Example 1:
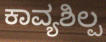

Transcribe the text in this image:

ಕಾವ್ಯಶಿಲ್ಪ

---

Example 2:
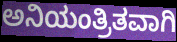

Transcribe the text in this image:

ಅನಿಯಂತ್ರಿತವಾಗಿ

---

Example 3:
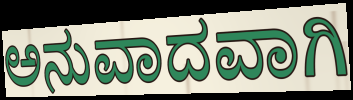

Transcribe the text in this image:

ಅನುವಾದವಾಗಿ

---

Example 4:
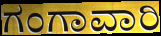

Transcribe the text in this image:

ಗಂಗಾವಾರಿ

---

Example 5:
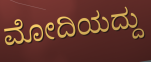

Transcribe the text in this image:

ಮೋದಿಯದ್ದು